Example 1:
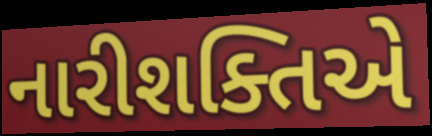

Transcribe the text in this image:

નારીશક્તિએ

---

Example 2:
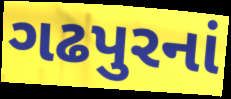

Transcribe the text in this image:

ગઢપુરનાં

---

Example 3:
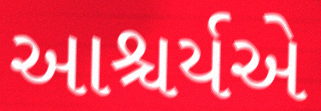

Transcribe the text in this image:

આશ્ચર્યએ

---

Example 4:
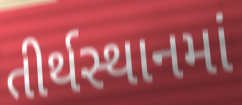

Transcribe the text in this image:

તીર્થસ્થાનમાં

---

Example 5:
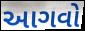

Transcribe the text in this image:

આગવો